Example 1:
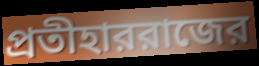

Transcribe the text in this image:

প্রতীহাররাজের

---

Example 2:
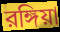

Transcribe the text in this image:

রঙ্গিয়া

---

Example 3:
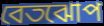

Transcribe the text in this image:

বেতঝোপ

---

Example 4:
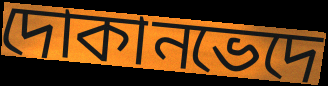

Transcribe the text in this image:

দোকানভেদে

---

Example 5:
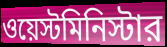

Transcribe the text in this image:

ওয়েস্টমিনিস্টার